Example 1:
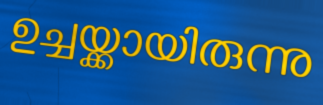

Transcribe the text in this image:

ഉച്ചയ്ക്കായിരുന്നു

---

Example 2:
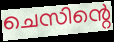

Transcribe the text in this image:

ചെസിന്റെ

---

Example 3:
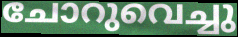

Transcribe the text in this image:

ചോറുവെച്ചു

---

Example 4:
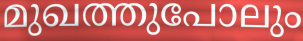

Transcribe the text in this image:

മുഖത്തുപോലും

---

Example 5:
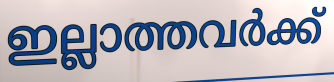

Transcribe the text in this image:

ഇല്ലാത്തവർക്ക്